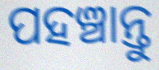
ପହଞ୍ଚାନ୍ତୁ